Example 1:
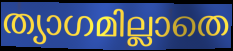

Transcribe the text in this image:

ത്യാഗമില്ലാതെ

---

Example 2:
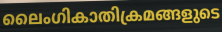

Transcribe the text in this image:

ലൈംഗികാതിക്രമങ്ങളുടെ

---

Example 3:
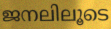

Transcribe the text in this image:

ജനലിലൂടെ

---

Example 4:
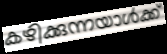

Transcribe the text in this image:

കഴിക്കുന്നയാൾക്ക്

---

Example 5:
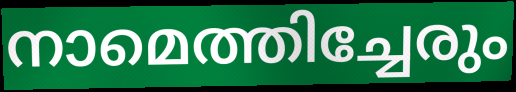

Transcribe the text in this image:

നാമെത്തിച്ചേരും